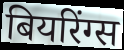
बियरिंग्स